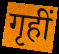
गृहीं